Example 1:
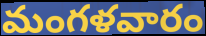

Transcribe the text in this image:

మంగళవారం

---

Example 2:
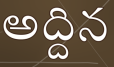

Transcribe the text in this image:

అద్దిన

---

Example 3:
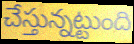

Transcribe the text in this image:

చేస్తున్నట్టుంది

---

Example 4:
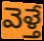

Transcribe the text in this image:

వెళ్తే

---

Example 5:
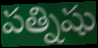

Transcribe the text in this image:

పత్నిషు